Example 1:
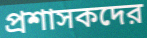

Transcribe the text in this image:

প্রশাসকদের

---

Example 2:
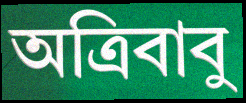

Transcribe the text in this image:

অত্রিবাবু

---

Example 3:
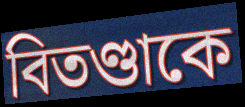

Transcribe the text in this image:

বিতণ্ডাকে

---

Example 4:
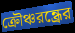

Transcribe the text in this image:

ক্রৌঞ্চরন্ধ্রের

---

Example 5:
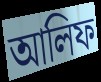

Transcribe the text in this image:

আলিফ